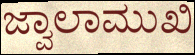
ಜ್ವಾಲಾಮುಖಿ